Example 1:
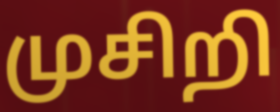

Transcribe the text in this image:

முசிறி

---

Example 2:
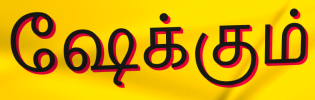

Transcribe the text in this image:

ஷேக்கும்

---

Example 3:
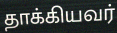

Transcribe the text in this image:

தாக்கியவர்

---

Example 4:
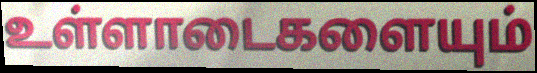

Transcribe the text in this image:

உள்ளாடைகளையும்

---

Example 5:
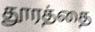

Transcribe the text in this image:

தூரத்தை